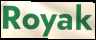
Royak